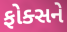
ફોક્સને